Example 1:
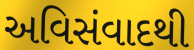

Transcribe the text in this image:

અવિસંવાદથી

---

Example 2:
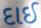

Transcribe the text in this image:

દાઈ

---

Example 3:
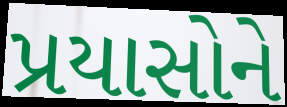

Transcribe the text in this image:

પ્રયાસોને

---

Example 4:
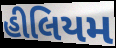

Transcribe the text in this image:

હીલિયમ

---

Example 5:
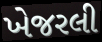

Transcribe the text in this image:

ખેજરલી